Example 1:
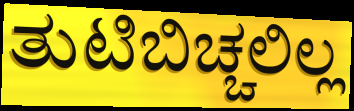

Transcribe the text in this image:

ತುಟಿಬಿಚ್ಚಲಿಲ್ಲ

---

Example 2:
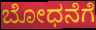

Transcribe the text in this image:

ಬೋಧನೆಗೆ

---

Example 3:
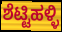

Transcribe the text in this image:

ಶೆಟ್ಟಿಹಳ್ಳಿ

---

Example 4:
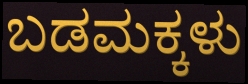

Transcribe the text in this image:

ಬಡಮಕ್ಕಳು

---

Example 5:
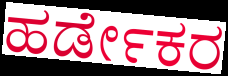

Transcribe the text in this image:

ಹರ್ಡೇಕರ